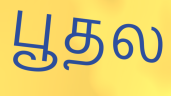
பூதல